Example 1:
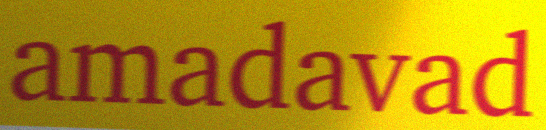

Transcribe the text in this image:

amadavad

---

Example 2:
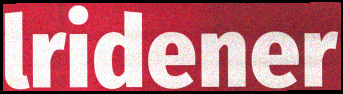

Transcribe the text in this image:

lridener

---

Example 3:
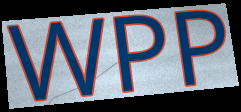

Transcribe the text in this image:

WPP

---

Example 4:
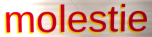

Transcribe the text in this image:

molestie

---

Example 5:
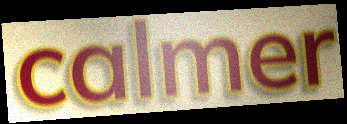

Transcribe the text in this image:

calmer